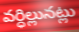
వర్ధిల్లునట్లు